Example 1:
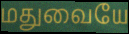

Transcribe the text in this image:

மதுவையே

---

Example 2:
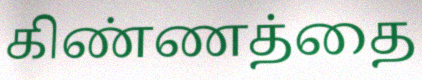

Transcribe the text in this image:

கிண்ணத்தை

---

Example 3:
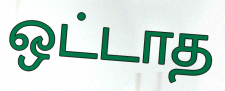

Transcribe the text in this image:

ஒட்டாத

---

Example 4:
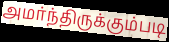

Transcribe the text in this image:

அமர்ந்திருக்கும்படி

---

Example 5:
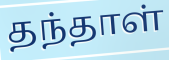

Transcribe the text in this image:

தந்தாள்